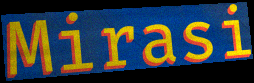
Mirasi